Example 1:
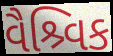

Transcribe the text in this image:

વૈશ્ર્વિક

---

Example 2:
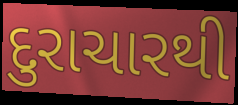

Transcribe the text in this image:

દુરાચારથી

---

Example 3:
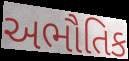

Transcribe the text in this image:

અભૌતિક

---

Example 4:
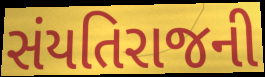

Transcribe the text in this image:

સંયતિરાજની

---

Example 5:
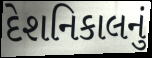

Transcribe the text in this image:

દેશનિકાલનું